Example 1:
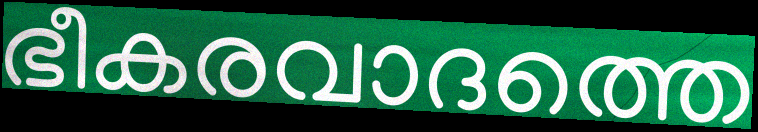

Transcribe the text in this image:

ഭീകരവാദത്തെ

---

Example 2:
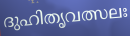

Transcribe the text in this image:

ദുഹിതൃവത്സലഃ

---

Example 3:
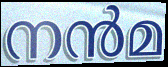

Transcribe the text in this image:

നൻമ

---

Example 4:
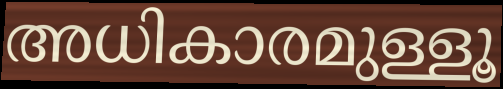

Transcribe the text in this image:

അധികാരമുള്ളൂ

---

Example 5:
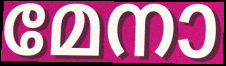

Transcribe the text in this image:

മേനാ